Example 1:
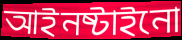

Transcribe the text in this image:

আইনষ্টাইনো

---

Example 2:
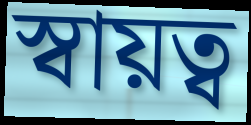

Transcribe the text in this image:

স্বায়ত্ব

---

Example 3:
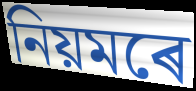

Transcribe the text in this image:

নিয়মৰে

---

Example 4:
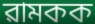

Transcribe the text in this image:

ৱামকক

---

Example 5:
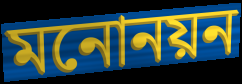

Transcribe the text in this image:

মনোনয়ন